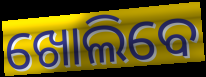
ଖୋଲିବେ